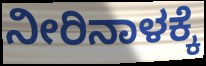
ನೀರಿನಾಳಕ್ಕೆ